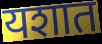
यशात